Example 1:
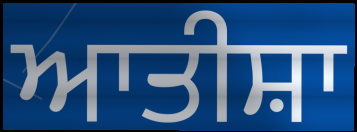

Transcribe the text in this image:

ਆਤੀਸ਼ਾ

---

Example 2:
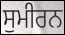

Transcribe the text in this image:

ਸੁਮੀਰਨ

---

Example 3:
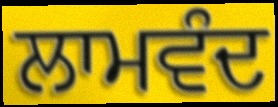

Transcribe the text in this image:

ਲਾਮਵੰਦ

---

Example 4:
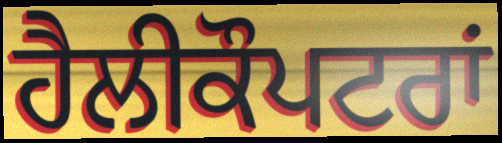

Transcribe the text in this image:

ਹੈਲੀਕੌਪਟਰਾਂ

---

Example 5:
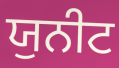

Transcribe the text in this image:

ਯੁਨੀਟ